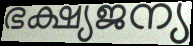
ഭക്ഷ്യജന്യ